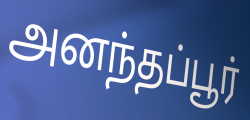
அனந்தப்பூர்